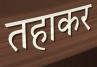
तहाकर